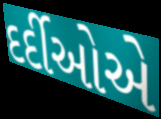
દર્દીઓએ